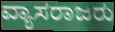
ವ್ಯಾಸರಾಜರು